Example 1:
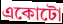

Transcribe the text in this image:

একোটো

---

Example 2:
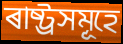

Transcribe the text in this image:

ৰাষ্ট্ৰসমূহে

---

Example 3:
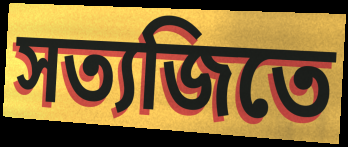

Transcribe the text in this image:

সত্যজিতে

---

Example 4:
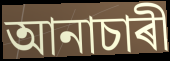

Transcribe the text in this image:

আনাচাৰী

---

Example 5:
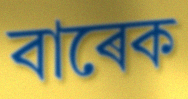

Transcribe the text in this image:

বাৰেক